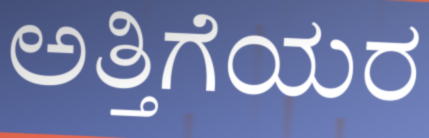
ಅತ್ತಿಗೆಯರ